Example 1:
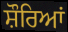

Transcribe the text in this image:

ਸ਼ੌਰਿਆਂ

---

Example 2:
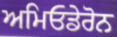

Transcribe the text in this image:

ਅਮਿਓਡੇਰੋਨ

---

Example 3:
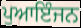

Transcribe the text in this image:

ਪੁਆਇੰਜਨ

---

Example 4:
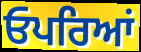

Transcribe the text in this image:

ਓਪਰਿਆਂ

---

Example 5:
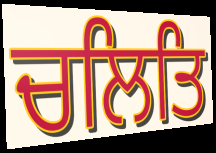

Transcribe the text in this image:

ਚਲਿਤਿ